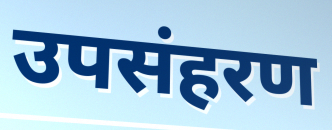
उपसंहरण